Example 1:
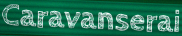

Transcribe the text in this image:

Caravanserai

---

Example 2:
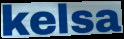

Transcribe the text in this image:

kelsa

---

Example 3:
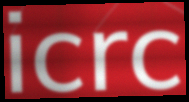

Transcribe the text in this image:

icrc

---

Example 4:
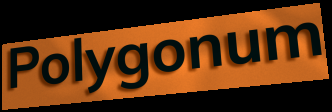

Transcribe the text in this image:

Polygonum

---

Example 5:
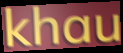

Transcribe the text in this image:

khau